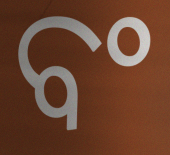
ବଂ